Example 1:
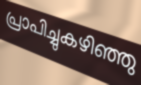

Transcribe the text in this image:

പ്രാപിച്ചുകഴിഞ്ഞു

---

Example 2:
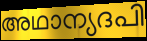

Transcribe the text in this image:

അഥാന്യദപി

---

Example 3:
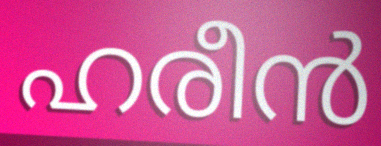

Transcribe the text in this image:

ഹരീൻ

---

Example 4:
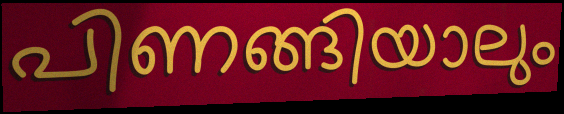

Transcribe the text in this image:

പിണങ്ങിയാലും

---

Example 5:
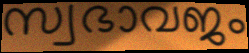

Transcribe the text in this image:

സ്വഭാവജം